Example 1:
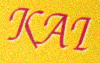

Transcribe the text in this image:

KAI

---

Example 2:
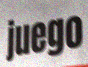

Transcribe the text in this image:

juego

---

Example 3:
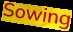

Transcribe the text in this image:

Sowing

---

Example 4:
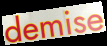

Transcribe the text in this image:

demise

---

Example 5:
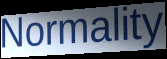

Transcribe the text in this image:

Normality